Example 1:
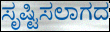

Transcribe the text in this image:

ಸೃಷ್ಟಿಸಲಾಗದ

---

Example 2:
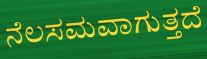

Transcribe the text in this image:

ನೆಲಸಮವಾಗುತ್ತದೆ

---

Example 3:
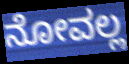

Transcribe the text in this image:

ನೋವಲ್ಲ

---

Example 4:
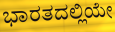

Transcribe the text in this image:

ಭಾರತದಲ್ಲಿಯೇ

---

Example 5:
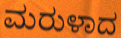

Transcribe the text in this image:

ಮರುಳಾದ